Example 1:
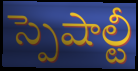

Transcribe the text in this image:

స్పెషాల్టీ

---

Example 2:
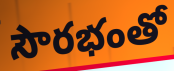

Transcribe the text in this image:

సౌరభంతో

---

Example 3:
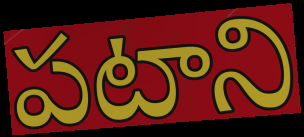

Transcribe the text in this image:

పటాని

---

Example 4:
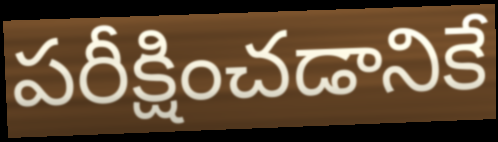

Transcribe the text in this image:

పరీక్షించడానికే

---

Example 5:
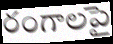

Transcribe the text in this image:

రంగాలపై